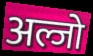
अल्जो